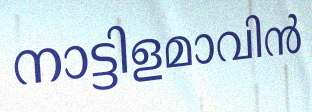
നാട്ടിളമാവിൻ